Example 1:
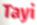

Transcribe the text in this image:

Tayi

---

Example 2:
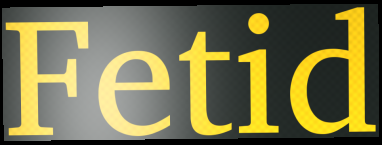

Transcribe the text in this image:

Fetid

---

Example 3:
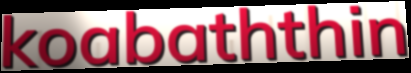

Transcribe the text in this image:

koabaththin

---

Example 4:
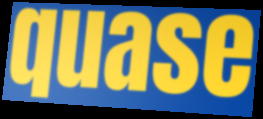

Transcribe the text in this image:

quase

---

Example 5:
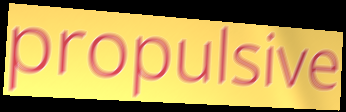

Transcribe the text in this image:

propulsive